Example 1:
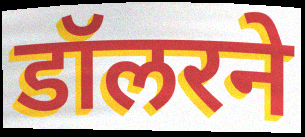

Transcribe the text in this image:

डॉलरने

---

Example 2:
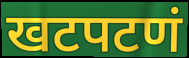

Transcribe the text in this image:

खटपटणं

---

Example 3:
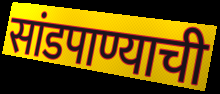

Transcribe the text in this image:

सांडपाण्याची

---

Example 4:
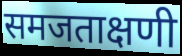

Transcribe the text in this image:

समजताक्षणी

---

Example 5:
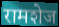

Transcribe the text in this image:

रामशेज